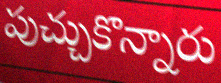
పుచ్చుకొన్నారు